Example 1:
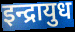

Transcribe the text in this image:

इन्द्रायुध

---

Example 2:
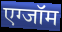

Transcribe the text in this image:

एग्जॉम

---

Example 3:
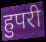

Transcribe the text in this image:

हुपरी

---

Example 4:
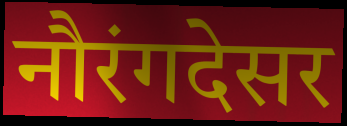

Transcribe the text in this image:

नौरंगदेसर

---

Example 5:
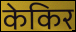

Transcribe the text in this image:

केकिर